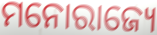
ମନୋରାଜ୍ୟେ